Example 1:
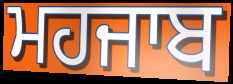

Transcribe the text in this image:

ਮਹਜਾਬ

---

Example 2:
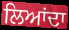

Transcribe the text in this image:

ਲਿਆਂਦਾ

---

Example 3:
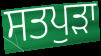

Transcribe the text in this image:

ਸਤਪੁੜਾ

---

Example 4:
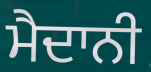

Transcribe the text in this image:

ਮੈਦਾਨੀ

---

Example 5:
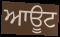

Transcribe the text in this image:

ਆਊਟ